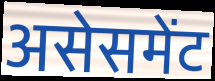
असेसमेंट